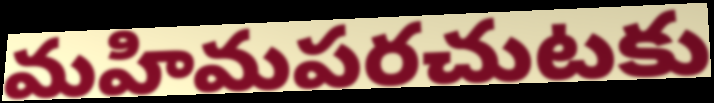
మహిమపరచుటకు